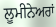
ਲੂਮੀਨੇਅਰਾਂ